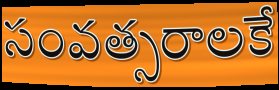
సంవత్సరాలకే